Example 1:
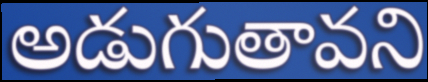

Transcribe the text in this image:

అడుగుతావని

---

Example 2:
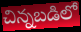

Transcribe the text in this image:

చిన్నబడిలో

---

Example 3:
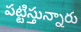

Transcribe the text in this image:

పట్టిస్తున్నారు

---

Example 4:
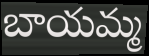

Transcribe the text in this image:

బాయమ్మ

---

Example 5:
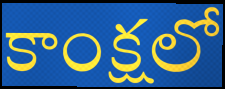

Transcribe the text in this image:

కాంక్షలో